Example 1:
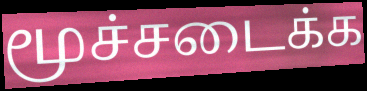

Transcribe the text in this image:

மூச்சடைக்க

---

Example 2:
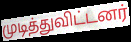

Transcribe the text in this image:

முடித்துவிட்டனர்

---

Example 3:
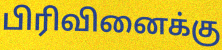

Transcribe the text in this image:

பிரிவினைக்கு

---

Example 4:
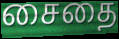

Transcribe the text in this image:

சைதை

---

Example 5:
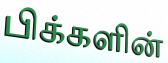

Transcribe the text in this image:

பிக்களின்